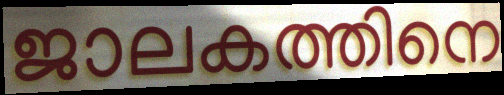
ജാലകത്തിനെ